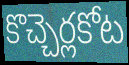
కొచ్చెర్లకోట